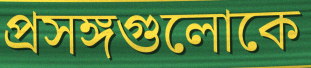
প্রসঙ্গগুলোকে